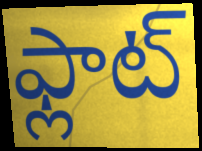
ఫ్లాట్